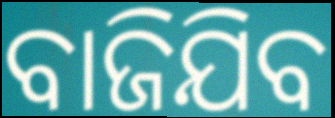
ବାଜିଯିବ